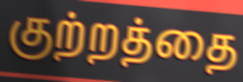
குற்றத்தை